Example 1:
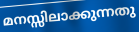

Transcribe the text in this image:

മനസ്സിലാക്കുന്നതു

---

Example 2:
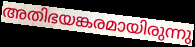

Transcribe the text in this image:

അതിഭയങ്കരമായിരുന്നു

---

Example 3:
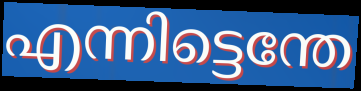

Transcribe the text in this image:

എന്നിട്ടെന്തേ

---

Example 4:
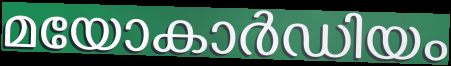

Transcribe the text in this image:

മയോകാർഡിയം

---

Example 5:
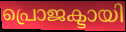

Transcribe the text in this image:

പ്രൊജക്ടായി